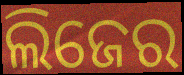
ଲିଜେର